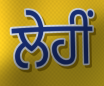
ਲੇਹੀਂ